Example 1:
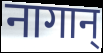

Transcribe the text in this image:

नागान्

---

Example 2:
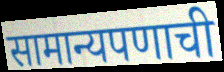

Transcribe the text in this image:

सामान्यपणाची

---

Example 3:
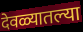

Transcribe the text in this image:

देवळ्यातल्या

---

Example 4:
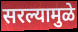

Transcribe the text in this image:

सरल्यामुळे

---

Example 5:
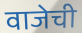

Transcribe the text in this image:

वाजेची